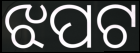
ଝପଟ